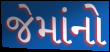
જેમાંનો